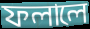
ফলালে